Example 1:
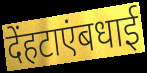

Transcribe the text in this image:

देंहटाएंबधाई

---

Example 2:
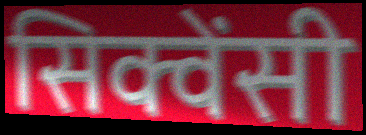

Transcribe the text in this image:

सिक्वेंसी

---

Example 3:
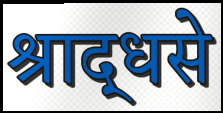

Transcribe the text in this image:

श्राद्धसे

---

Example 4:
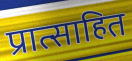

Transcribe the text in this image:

प्रात्साहित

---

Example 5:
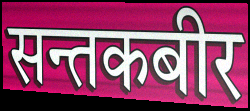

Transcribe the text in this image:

सन्तकबीर